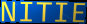
NITIE